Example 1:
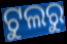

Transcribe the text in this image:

ଟୁଲରୁ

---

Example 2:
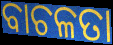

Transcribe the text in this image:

ବାଚଳତା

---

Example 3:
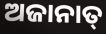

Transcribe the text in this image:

ଅଜାନାତ୍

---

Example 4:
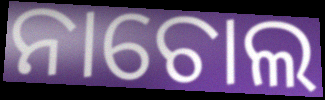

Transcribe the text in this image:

ନାଚୋଲ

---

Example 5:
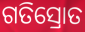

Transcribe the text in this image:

ଗତିସ୍ରୋତ